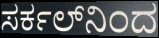
ಸರ್ಕಲ್‌ನಿಂದ